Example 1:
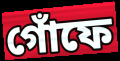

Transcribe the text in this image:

গোঁফে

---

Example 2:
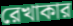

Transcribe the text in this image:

রেখাকার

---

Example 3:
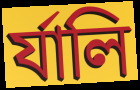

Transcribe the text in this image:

র্যালি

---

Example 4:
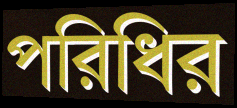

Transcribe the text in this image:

পরিধির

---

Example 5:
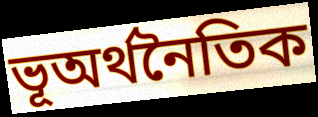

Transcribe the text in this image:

ভূঅর্থনৈতিক